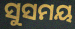
ସୁସମୟ